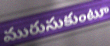
మురుసుకుంటూ